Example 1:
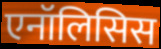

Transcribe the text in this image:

एनॉलिसिस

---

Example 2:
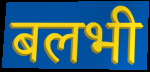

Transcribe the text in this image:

बलभी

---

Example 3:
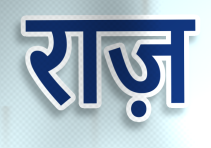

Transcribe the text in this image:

राज़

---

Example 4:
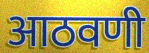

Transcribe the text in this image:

आठवणी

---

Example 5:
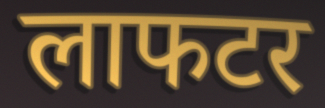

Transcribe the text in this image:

लाफटर